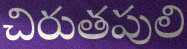
చిరుతపులి